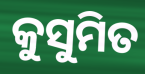
କୁସୁମିତ